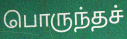
பொருந்தச்